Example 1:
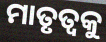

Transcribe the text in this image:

ମାତୃତ୍ବକୁ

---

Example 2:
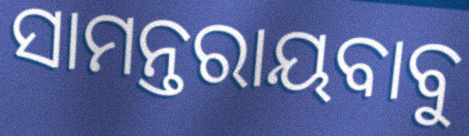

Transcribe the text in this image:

ସାମନ୍ତରାୟବାବୁ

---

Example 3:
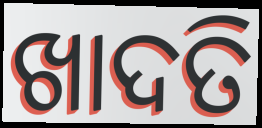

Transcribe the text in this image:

ଖାଦତି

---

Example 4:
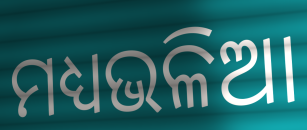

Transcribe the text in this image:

ମଧ୍ୟଭଳିଆ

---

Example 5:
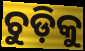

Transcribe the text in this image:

ଚୁଡ଼ିକୁ